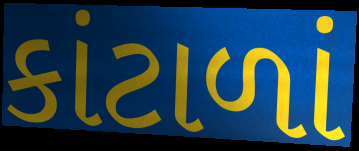
કાંટાળાં